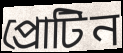
প্রোটিন